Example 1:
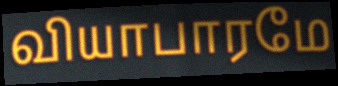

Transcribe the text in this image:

வியாபாரமே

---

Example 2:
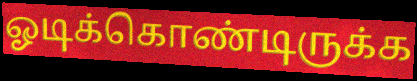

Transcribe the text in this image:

ஓடிக்கொண்டிருக்க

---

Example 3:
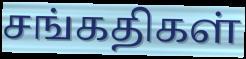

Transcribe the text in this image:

சங்கதிகள்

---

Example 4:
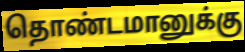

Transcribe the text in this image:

தொண்டமானுக்கு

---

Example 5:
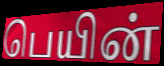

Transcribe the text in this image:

பெயின்